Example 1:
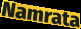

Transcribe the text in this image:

Namrata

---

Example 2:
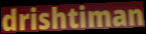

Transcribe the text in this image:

drishtiman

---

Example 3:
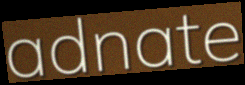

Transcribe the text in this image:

adnate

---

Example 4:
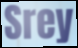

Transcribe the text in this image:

Srey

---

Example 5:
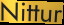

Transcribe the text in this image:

Nittur